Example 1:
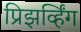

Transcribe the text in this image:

प्रिझर्व्हिंग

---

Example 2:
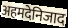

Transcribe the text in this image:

अहमदेनिजाद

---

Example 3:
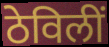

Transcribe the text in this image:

ठेविलीं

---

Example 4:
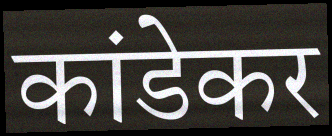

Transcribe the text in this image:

कांडेकर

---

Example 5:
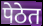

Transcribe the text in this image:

पेठेत